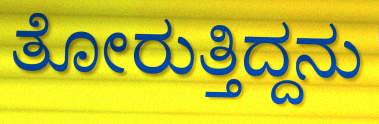
ತೋರುತ್ತಿದ್ದನು